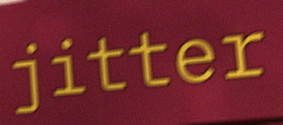
jitter